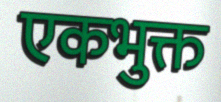
एकभुक्त